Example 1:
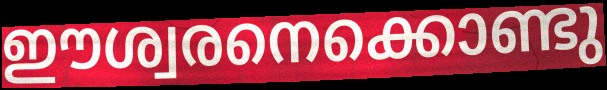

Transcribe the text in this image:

ഈശ്വരനെക്കൊണ്ടു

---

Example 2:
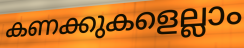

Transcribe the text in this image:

കണക്കുകളെല്ലാം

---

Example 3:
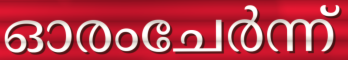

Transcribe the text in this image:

ഓരംചേർന്ന്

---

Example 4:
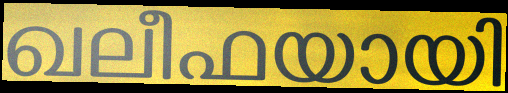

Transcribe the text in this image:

ഖലീഫയായി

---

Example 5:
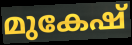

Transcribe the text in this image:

മുകേഷ്